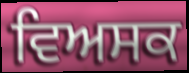
ਵਿਅਸਕ